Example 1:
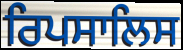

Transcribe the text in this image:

ਰਿਪਸਾਲਿਸ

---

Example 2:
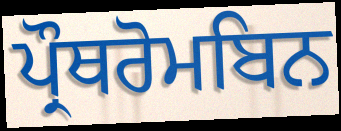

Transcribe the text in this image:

ਪ੍ਰੌਥਰੋਮਬਿਨ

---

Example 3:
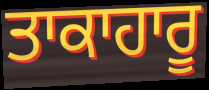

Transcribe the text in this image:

ਤਾਕਾਹਾਰੂ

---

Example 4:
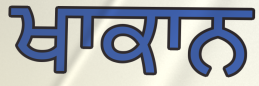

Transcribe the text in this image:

ਖਾਕਾਨ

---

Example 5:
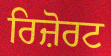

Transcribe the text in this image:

ਰਿਜ਼ੋਰਟ